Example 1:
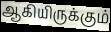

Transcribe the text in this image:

ஆகியிருக்கும்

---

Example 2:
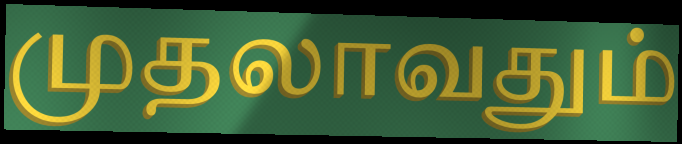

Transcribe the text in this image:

முதலாவதும்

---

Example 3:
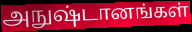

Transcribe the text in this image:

அநுஷ்டானங்கள்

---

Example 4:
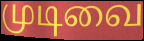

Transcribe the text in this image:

முடிவை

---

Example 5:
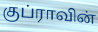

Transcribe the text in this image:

குப்ராவின்